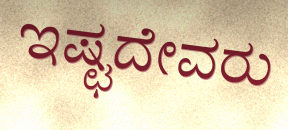
ಇಷ್ಟದೇವರು